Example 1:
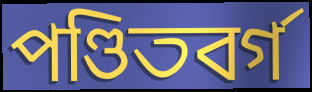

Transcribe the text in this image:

পণ্ডিতবর্গ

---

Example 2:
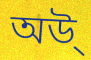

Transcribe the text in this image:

অউ্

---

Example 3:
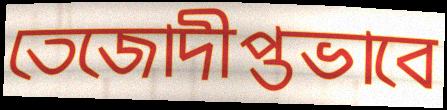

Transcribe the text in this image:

তেজোদীপ্তভাবে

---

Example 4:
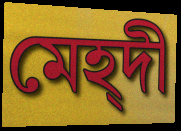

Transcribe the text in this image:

মেহ্দী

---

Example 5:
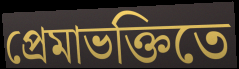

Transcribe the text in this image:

প্রেমাভক্তিতে